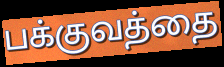
பக்குவத்தை